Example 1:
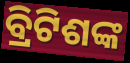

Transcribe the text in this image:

ବ୍ରିଟିଶଙ୍କ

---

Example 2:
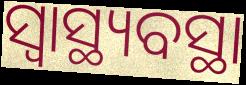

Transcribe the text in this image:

ସ୍ଵାସ୍ଥ୍ୟବସ୍ଥା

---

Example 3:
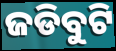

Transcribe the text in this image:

ଜଡିବୁଟି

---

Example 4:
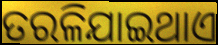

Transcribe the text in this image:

ତରଳିଯାଇଥାଏ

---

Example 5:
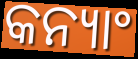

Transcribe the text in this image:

କନ୍ୟାଂ